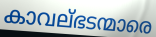
കാവല്ഭടന്മാരെ